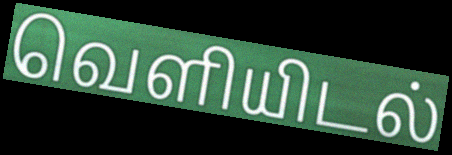
வெளியிடல்